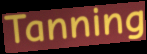
Tanning